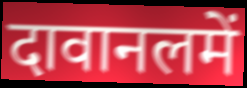
दावानलमें